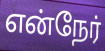
என்நேர்